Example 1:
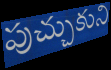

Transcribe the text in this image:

పుచ్చుకుని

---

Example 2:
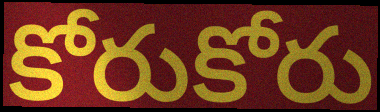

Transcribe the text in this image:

కోరుకోరు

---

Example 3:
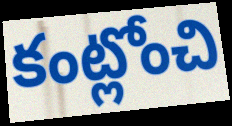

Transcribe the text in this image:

కంట్లోంచి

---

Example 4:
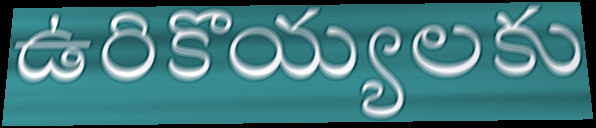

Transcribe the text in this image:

ఉరికొయ్యలకు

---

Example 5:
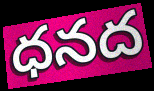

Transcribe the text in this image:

ధనద